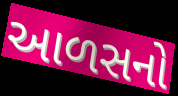
આળસનો